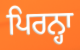
ਪਿਰਨ੍ਹਾ